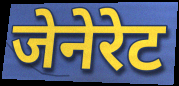
जेनेरेट